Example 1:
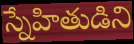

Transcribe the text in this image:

స్నేహితుడిని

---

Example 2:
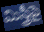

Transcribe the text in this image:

మిస్త్రీపై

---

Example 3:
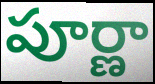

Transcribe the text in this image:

పూర్ణా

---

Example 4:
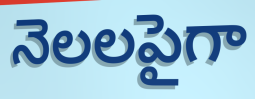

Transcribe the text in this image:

నెలలపైగా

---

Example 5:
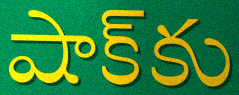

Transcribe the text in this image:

షాక్‌కు